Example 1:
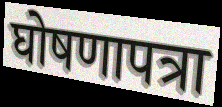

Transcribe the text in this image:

घोषणापत्रा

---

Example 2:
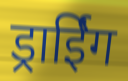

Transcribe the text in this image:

ड्राईिंग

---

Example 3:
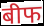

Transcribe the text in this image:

बीफ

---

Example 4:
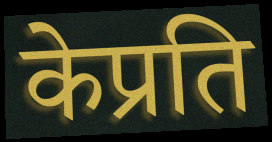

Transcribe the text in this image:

केप्रति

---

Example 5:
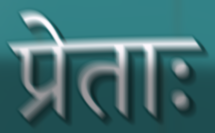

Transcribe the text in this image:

प्रेताः